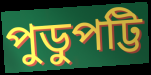
পুডুপট্টি